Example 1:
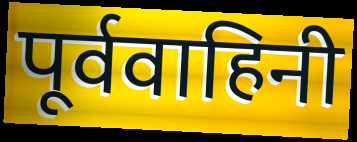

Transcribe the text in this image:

पूर्ववाहिनी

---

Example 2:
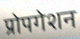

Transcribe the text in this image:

प्रोपगेशन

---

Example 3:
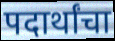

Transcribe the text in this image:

पदार्थांचा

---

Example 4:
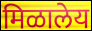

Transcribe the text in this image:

मिळालेय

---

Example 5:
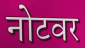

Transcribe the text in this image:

नोटवर